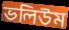
ভলিউম